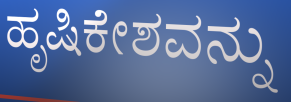
ಹೃಷಿಕೇಶವನ್ನು